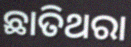
ଛାତିଥରା